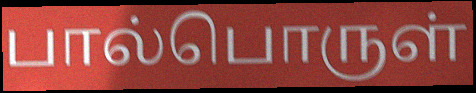
பால்பொருள்